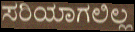
ಸರಿಯಾಗಲಿಲ್ಲ